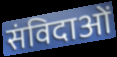
संविदाओं